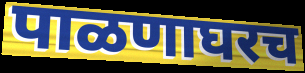
पाळणाघरच